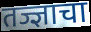
तज्ज्ञाचा